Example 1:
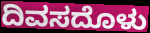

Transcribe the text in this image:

ದಿವಸದೊಳು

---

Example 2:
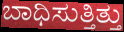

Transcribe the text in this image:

ಬಾಧಿಸುತ್ತಿತ್ತು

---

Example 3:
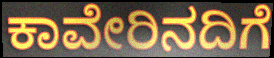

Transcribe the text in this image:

ಕಾವೇರಿನದಿಗೆ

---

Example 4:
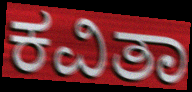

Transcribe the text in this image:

ಕವಿತಾ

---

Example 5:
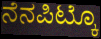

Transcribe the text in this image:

ನೆನಪಿಟ್ಕೊ